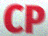
CP